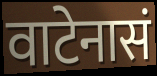
वाटेनासं